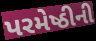
પરમેષ્ઠીની